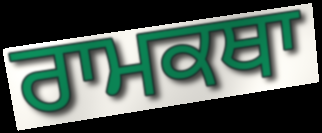
ਰਾਮਕਥਾ